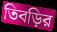
তিবড়ির